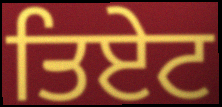
ਤਿਏਟ